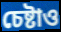
চেষ্টাও